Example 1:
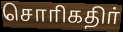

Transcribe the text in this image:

சொரிகதிர்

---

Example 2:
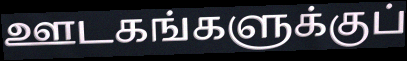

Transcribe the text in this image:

ஊடகங்களுக்குப்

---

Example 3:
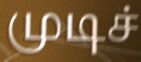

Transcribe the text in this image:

முடிச்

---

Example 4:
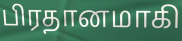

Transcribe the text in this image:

பிரதானமாகி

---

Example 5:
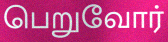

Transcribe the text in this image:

பெறுவோர்